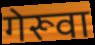
गेरूवा